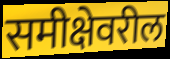
समीक्षेवरील